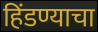
हिंडण्याचा